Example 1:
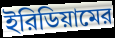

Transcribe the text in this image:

ইরিডিয়ামের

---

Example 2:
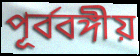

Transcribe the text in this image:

পূর্ববঙ্গীয়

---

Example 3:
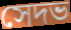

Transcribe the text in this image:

সেদভ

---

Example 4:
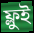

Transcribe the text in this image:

ফ্লুই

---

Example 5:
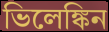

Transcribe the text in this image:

ভিলেঙ্কিন